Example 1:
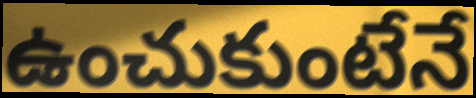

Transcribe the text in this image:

ఉంచుకుంటేనే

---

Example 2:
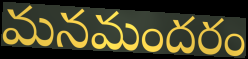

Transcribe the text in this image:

మనమందరం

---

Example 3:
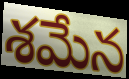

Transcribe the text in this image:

శమేన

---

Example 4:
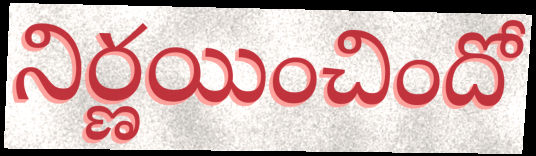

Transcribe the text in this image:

నిర్ణయించిందో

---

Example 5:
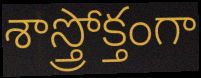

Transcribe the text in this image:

శాస్త్రోక్తంగా